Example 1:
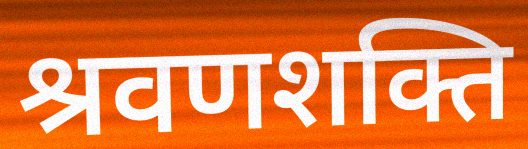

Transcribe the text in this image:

श्रवणशक्ति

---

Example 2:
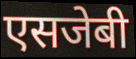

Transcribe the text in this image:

एसजेबी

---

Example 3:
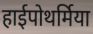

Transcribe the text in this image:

हाईपोथर्मिया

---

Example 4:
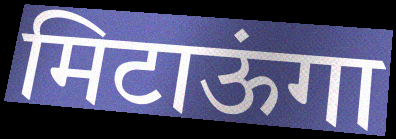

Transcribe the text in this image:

मिटाऊंगा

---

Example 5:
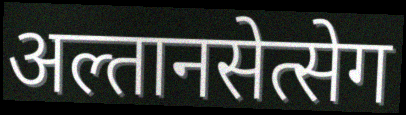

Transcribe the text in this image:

अल्तानसेत्सेग